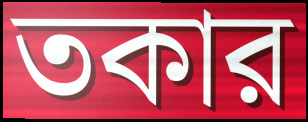
তকার